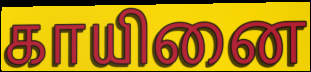
காயினை